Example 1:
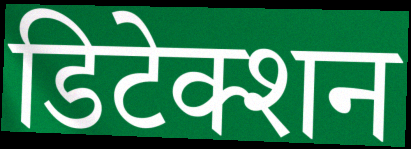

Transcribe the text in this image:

डिटेक्शन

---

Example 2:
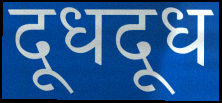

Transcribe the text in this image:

दूधदूध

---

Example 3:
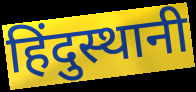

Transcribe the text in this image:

हिंदुस्थानी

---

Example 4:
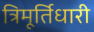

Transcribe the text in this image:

त्रिमूर्तिधारी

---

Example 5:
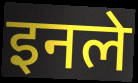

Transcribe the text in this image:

इनले